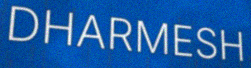
DHARMESH